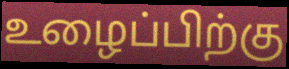
உழைப்பிற்கு